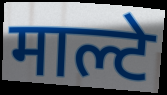
माल्टे